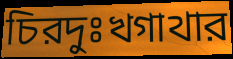
চিরদুঃখগাথার